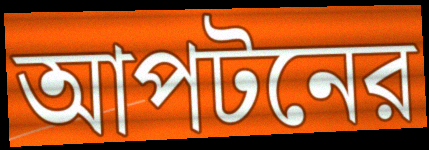
আপটনের